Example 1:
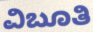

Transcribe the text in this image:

ವಿಬೂತಿ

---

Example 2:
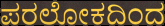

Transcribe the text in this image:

ಪರಲೋಕದಿಂದ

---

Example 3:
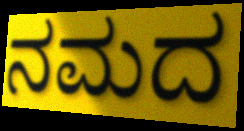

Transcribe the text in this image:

ನಮದ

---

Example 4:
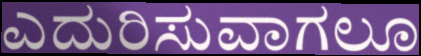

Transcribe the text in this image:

ಎದುರಿಸುವಾಗಲೂ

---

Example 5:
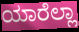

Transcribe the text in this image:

ಯಾರೆಲ್ಲಾ